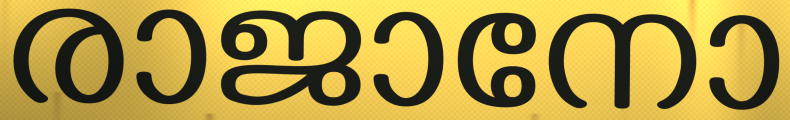
രാജാനോ